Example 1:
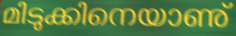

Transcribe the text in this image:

മിടുക്കിനെയാണു്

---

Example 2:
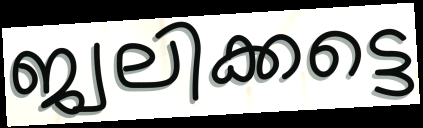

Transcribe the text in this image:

ജ്വലിക്കട്ടെ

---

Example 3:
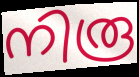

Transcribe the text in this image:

നിരൂ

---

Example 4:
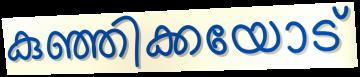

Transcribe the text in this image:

കുഞ്ഞിക്കയോട്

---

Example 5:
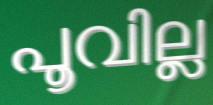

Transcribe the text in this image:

പൂവില്ല